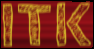
ITK